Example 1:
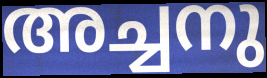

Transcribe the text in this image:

അച്ചനു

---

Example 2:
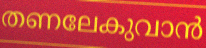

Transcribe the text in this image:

തണലേകുവാൻ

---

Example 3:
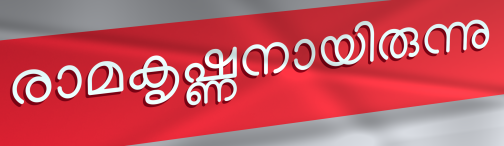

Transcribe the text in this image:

രാമകൃഷ്ണനായിരുന്നു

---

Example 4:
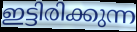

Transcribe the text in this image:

ഇട്ടിരിക്കുന്ന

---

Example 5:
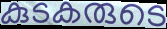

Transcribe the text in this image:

കുടകരുടെ